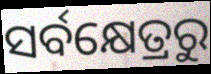
ସର୍ବକ୍ଷେତ୍ରରୁ